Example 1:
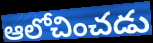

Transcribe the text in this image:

ఆలోచించడు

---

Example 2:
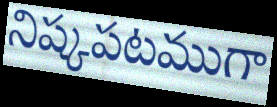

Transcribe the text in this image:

నిష్కపటముగా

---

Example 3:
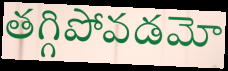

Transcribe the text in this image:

తగ్గిపోవడమో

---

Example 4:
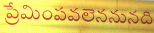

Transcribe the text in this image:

ప్రేమింపవలెననునది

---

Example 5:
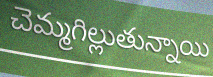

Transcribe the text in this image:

చెమ్మగిల్లుతున్నాయి